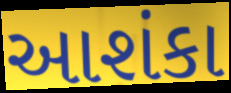
આશંકા